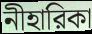
নীহারিকা